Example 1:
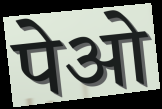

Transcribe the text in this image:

पेओ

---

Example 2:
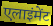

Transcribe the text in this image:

एलाइंमेंट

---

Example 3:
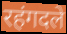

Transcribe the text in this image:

रहंगदले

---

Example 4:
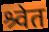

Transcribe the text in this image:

श्र्वेत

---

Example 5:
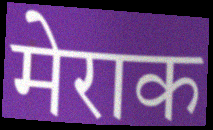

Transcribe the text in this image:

मेराक